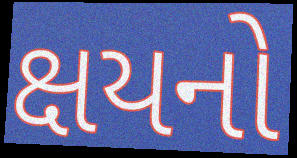
ક્ષયનો